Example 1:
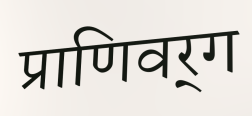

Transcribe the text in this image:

प्राणिवर्ग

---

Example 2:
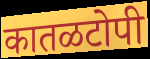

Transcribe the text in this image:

कातळटोपी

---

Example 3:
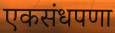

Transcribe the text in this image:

एकसंधपणा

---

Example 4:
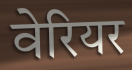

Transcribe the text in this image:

वेरियर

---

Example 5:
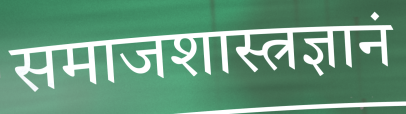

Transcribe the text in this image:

समाजशास्त्रज्ञानं